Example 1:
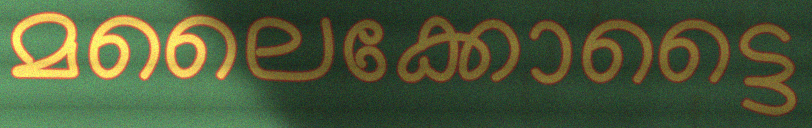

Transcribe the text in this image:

മലൈക്കോട്ടൈ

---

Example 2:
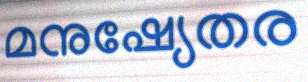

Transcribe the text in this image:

മനുഷ്യേതര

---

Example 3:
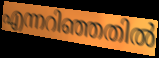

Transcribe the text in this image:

എന്നറിഞ്ഞതിൽ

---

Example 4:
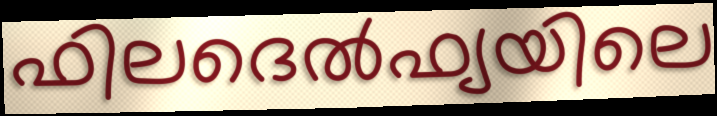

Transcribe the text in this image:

ഫിലദെൽഫ്യയിലെ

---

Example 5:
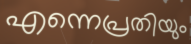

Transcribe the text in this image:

എന്നെപ്രതിയും